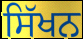
ਸਿੱਖਨ